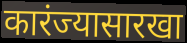
कारंज्यासारखा